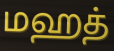
மஹத்